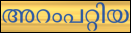
അറംപറ്റിയ